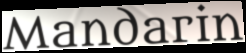
Mandarin